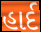
હાર્દ